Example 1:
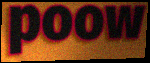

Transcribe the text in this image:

poow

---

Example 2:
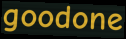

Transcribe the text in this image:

goodone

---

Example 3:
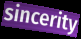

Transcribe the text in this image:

sincerity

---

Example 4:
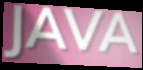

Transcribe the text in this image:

JAVA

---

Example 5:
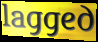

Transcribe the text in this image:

lagged